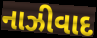
નાઝીવાદ